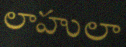
లాహులా